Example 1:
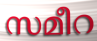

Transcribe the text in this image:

സമീറ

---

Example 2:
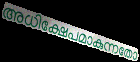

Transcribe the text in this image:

അധിക്ഷേപമാകുന്നതോ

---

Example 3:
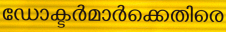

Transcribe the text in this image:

ഡോക്ടർമാർക്കെതിരെ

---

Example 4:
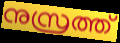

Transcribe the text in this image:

നുസ്രത്ത്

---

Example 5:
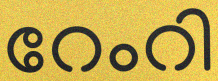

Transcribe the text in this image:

റേംറി